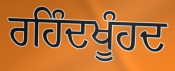
ਰਹਿੰਦਖੂੰਹਦ